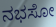
ನಭಸೋ